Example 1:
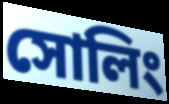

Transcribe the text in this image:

সোলিং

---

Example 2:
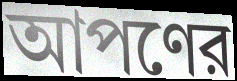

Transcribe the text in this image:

আপণের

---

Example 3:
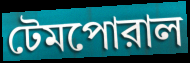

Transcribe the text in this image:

টেমপোরাল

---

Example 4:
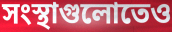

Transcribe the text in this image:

সংস্থাগুলোতেও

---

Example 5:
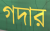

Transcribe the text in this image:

গদার